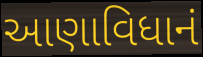
આણાવિધાનં